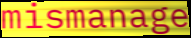
mismanage